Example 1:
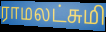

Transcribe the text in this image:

ராமலட்சுமி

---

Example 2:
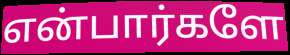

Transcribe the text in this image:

என்பார்களே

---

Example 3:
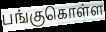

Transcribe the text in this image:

பங்குகொள்ள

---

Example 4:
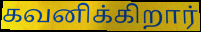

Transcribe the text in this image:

கவனிக்கிறார்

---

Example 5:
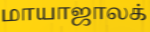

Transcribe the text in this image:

மாயாஜாலக்